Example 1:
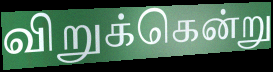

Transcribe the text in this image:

விறுக்கென்று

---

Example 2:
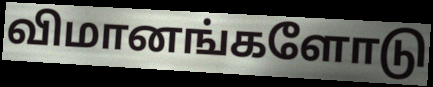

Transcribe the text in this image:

விமானங்களோடு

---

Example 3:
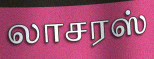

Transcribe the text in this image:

லாசரஸ்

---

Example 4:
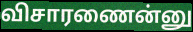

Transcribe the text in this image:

விசாரணைன்னு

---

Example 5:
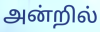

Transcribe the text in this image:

அன்றில்